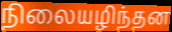
நிலையழிந்தன